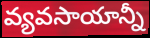
వ్యవసాయాన్నీ